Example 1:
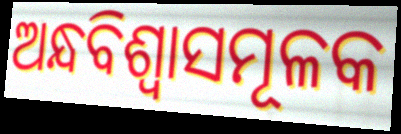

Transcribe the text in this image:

ଅନ୍ଧବିଶ୍ୱାସମୂଳକ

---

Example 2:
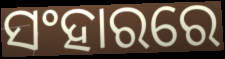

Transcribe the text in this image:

ସଂହାରରେ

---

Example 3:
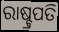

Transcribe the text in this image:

ରାଷ୍ଚ୍ରପତି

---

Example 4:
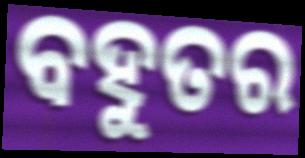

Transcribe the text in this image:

ବହୁତର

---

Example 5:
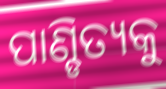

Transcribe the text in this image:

ପାଣ୍ଡିତ୍ୟକୁ